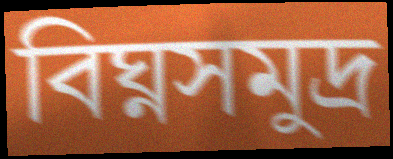
বিঘ্নসমুদ্র